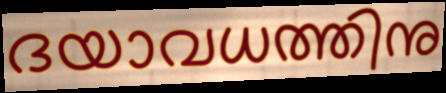
ദയാവധത്തിനു